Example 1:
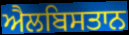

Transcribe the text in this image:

ਐਲਬਿਸਤਾਨ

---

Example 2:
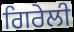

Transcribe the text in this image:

ਗਿਰੇਲੀ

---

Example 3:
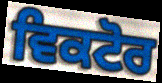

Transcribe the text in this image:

ਵਿਕਟੋਰ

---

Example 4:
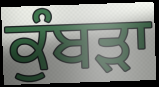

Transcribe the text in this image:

ਕੁੰਬੜਾ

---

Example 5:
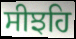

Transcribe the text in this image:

ਸੀਝਹਿ